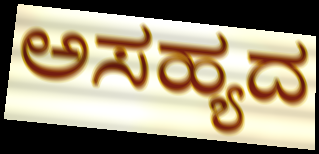
ಅಸಹ್ಯದ